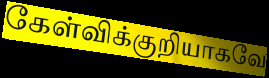
கேள்விக்குறியாகவே